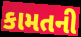
કામતની